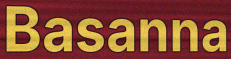
Basanna